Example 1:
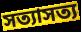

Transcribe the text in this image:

সত্যাসত্য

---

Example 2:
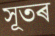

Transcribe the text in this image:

সূতৰ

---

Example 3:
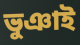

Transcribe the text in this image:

ভুঞাই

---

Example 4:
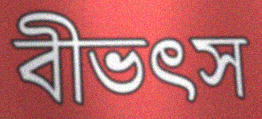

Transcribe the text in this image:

বীভৎস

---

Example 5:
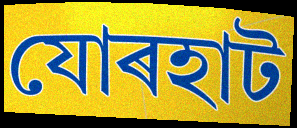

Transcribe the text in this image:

যোৰহাট